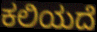
ಕಲಿಯದೆ